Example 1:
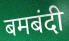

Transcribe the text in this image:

बमबंदी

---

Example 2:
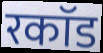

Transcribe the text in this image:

रकॉड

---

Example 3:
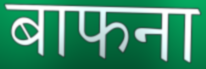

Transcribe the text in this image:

बाफना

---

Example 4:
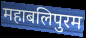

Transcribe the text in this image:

महाबलिपुरम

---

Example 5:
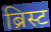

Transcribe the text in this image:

ब्रिस्ट